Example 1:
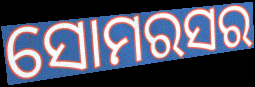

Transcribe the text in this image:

ସୋମରସର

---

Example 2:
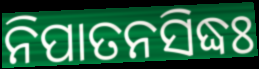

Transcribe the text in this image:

ନିପାତନସିଦ୍ଧଃ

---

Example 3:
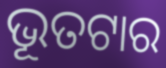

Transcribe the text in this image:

ଭୂତଟାର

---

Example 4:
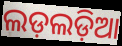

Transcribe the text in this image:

ଲଡ଼ଲଡ଼ିଆ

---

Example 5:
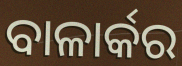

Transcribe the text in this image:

ବାଳାର୍କର